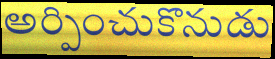
అర్పించుకొనుడు